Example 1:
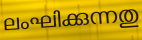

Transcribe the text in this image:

ലംഘിക്കുന്നതു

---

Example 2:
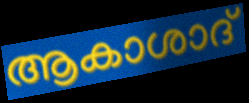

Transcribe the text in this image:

ആകാശാദ്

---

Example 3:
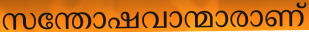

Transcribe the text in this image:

സന്തോഷവാന്മാരാണ്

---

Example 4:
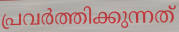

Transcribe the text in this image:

പ്രവർത്തിക്കുന്നത്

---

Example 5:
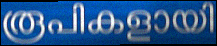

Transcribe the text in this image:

രൂപികളായി